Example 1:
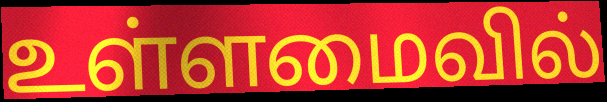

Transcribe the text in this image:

உள்ளமைவில்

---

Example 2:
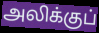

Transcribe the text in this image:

அலிக்குப்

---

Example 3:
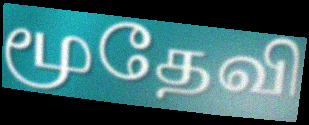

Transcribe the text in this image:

மூதேவி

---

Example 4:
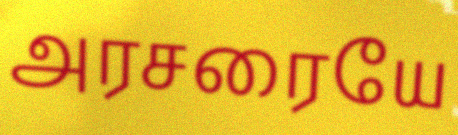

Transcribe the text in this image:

அரசரையே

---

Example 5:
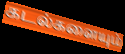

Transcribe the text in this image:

கடல்களையும்